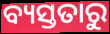
ବ୍ୟସ୍ତତାରୁ